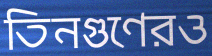
তিনগুণেরও